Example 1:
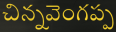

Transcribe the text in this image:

చిన్నవెంగప్ప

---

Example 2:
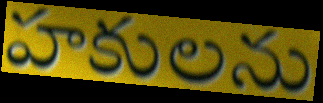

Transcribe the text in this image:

హకులను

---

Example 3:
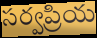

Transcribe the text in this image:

సర్వప్రియ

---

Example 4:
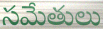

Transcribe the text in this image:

సమేతులు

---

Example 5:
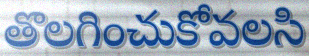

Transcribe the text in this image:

తొలగించుకోవలసి